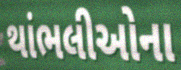
થાંભલીઓના